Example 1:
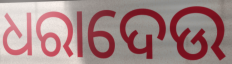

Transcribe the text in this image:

ଧରାଦେଉ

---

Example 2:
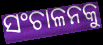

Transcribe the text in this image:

ସଂଚାଳନକୁ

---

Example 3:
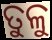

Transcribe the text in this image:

ତୁଳୁ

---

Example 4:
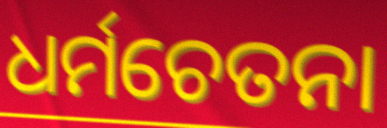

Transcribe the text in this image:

ଧର୍ମଚେତନା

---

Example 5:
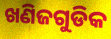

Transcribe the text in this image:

ଖଣିଜଗୁଡିକ